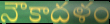
నౌకాదళం